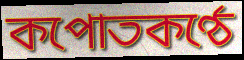
কপোতকণ্ঠে